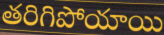
తరిగిపోయాయి